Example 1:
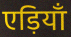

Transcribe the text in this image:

एड़ियाँ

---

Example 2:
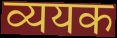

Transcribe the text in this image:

व्ययक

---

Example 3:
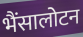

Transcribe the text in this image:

भैंसालोटन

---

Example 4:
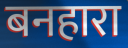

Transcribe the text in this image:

बनहारा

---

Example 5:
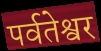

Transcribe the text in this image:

पर्वतेश्वर